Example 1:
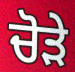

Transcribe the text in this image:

ਚੋੜੇ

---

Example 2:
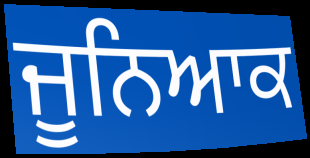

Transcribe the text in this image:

ਜੂਨਿਆਕ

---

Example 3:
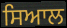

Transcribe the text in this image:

ਸਿਆਲ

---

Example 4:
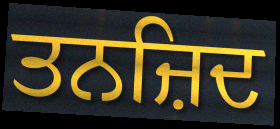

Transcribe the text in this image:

ਤਨਜ਼ਿਦ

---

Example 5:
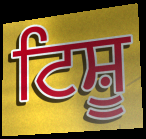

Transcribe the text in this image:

ਟਿਸ਼ੂ